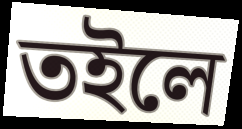
তইলে